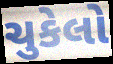
ચુકેલો